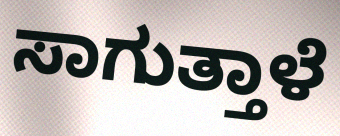
ಸಾಗುತ್ತಾಳೆ